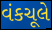
વંકચૂલે